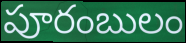
పూరంబులం